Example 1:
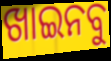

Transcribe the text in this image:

ଖାଇନବୁ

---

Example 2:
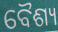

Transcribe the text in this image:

ବୈଶ୍ୟ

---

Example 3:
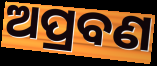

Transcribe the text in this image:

ଅପ୍ରବଣ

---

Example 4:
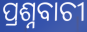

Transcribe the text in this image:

ପ୍ରଶ୍ନବାଚୀ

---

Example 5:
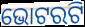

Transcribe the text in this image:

ଭୋଟରଟି